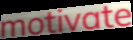
motivate